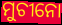
ମୁଚୀନୋ